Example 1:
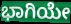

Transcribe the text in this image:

ಭಾಗಿಯೇ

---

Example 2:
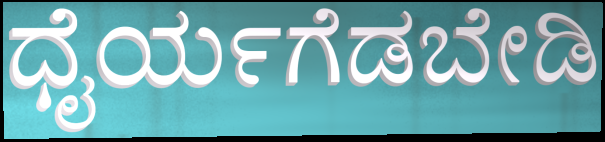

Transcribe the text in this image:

ಧೈರ್ಯಗೆಡಬೇಡಿ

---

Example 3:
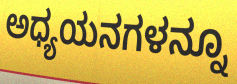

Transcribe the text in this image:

ಅಧ್ಯಯನಗಳನ್ನೂ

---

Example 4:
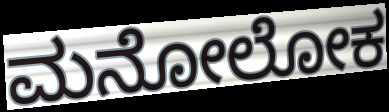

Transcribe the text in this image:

ಮನೋಲೋಕ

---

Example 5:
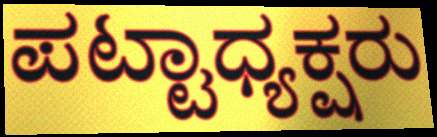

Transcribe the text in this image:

ಪಟ್ಟಾಧ್ಯಕ್ಷರು